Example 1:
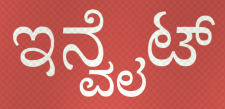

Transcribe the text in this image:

ಇನ್ವೈಟ್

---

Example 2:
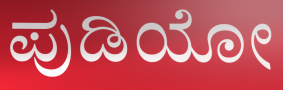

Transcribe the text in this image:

ಪುಡಿಯೋ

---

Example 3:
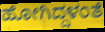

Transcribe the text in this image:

ಹೋಗಿದ್ದಳಂತೆ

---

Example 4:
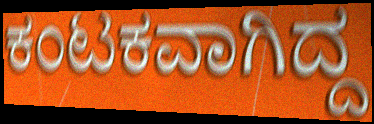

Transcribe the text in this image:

ಕಂಟಕವಾಗಿದ್ದ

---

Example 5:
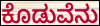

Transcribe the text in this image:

ಕೊಡುವೆನು